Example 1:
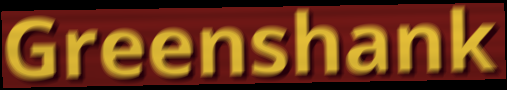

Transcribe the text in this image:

Greenshank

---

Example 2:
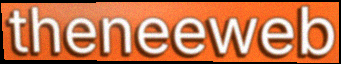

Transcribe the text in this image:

theneeweb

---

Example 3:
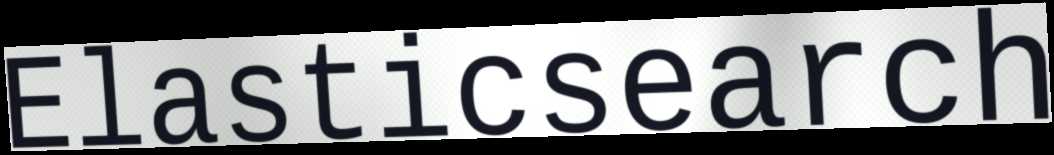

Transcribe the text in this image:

Elasticsearch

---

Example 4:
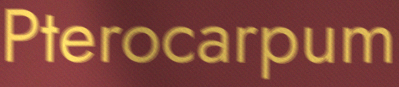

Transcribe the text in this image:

Pterocarpum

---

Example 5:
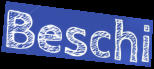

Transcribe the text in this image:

Beschi